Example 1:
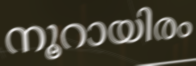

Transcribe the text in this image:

നൂറായിരം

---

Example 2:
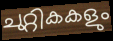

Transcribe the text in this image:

ചുറ്റികകളും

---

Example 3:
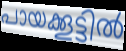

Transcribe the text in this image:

പായക്കൂട്ടിൽ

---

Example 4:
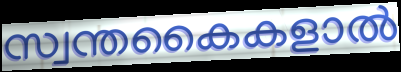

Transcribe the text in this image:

സ്വന്തകൈകളാൽ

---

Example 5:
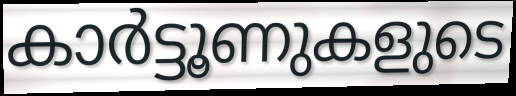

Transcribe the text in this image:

കാർട്ടൂണുകളുടെ